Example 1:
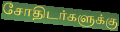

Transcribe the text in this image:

சோதிடர்களுக்கு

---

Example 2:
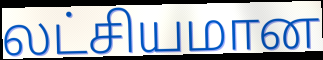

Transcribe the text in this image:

லட்சியமான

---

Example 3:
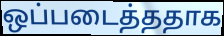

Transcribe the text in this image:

ஒப்படைத்ததாக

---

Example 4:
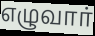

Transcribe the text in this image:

எழுவார்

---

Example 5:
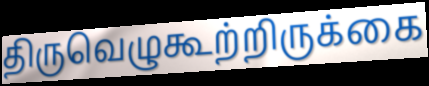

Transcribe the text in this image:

திருவெழுகூற்றிருக்கை